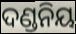
ଦଣ୍ଡନିୟ